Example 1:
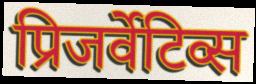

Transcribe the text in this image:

प्रिजर्वेटिव्स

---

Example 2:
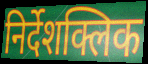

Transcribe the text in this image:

निर्देशक्लिक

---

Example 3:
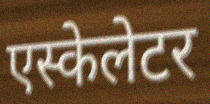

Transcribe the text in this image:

एस्केलेटर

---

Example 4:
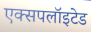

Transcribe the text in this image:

एक्सपलॉइटेड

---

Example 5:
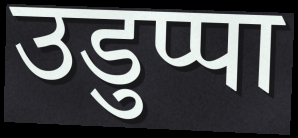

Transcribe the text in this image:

उडुप्पा